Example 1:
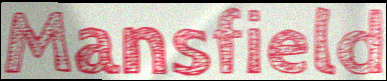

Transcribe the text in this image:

Mansfield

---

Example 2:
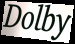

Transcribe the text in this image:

Dolby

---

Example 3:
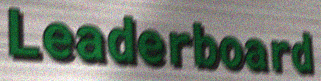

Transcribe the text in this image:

Leaderboard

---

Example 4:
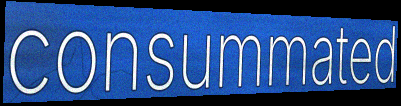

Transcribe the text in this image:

consummated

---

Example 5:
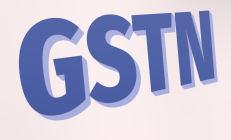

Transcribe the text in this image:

GSTN